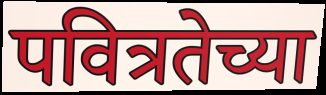
पवित्रतेच्या